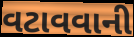
વટાવવાની